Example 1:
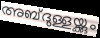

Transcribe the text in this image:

അബ്ദുള്ളയ്ക്കും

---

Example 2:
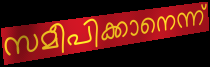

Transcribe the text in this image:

സമീപിക്കാനെന്ന്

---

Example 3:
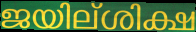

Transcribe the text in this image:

ജയില്ശിക്ഷ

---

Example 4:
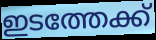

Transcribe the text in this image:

ഇടത്തേക്ക്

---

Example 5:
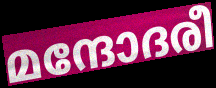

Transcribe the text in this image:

മന്ദോദരീ